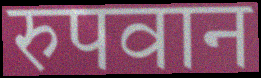
रुपवान